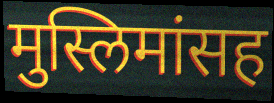
मुस्लिमांसह